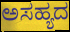
ಅಸಹ್ಯದ